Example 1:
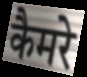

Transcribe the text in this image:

कैमरे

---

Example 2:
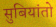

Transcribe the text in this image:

सुबियांतो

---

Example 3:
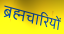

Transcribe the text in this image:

ब्रह्मचारियों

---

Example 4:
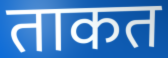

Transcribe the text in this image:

ताकत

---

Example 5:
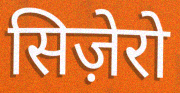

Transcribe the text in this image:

सिज़ेरो